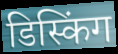
डिस्किंग